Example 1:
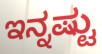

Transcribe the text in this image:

ಇನ್ನಷ್ಟು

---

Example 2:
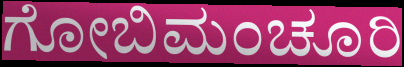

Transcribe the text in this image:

ಗೋಬಿಮಂಚೂರಿ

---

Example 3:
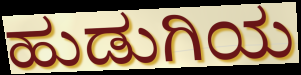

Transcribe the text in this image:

ಹುಡುಗಿಯ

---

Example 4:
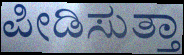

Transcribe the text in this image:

ಪೀಡಿಸುತ್ತಾ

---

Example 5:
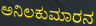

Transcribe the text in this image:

ಅನಿಲಕುಮಾರನ